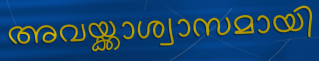
അവയ്ക്കാശ്വാസമായി